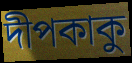
দীপকাকু